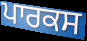
ਪਾਰਕਸ